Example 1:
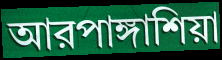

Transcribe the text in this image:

আরপাঙ্গাশিয়া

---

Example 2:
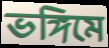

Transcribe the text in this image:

ভঙ্গিমে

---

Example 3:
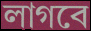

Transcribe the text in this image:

লাগবে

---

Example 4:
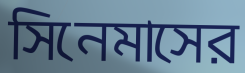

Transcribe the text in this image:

সিনেমাসের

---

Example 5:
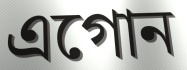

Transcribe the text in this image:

এগোন